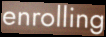
enrolling